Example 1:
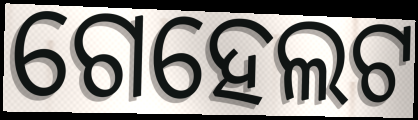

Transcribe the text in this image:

ଗେହେଲଟ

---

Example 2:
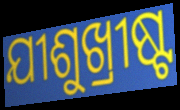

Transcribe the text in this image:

ଯୀଶୁଖ୍ରୀଷ୍ଟ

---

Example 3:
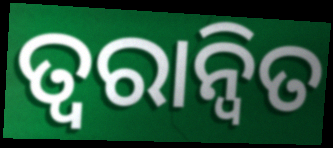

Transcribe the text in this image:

ତ୍ଵରାନ୍ବିତ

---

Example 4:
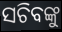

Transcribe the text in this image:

ସଚିବଙ୍କୁ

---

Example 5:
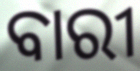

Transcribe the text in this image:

ବାରୀ